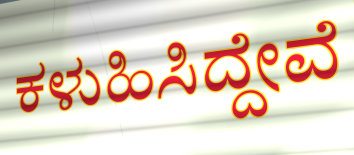
ಕಳುಹಿಸಿದ್ದೇವೆ